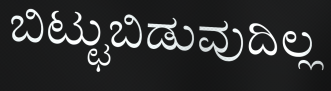
ಬಿಟ್ಟುಬಿಡುವುದಿಲ್ಲ